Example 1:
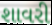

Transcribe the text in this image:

શાવરી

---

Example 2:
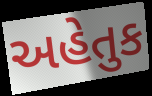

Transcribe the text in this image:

અહેતુક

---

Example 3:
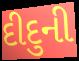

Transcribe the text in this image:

દીદુની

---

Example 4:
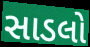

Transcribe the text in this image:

સાડલો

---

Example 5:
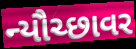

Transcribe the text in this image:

ન્યૌચ્છાવર